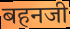
बहनजी